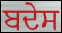
ਬਦੇਸ